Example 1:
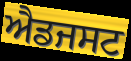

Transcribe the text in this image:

ਐਡਜਸਟ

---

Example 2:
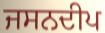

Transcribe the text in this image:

ਜਸਨਦੀਪ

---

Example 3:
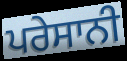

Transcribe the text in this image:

ਪਰੇਸਾਨੀ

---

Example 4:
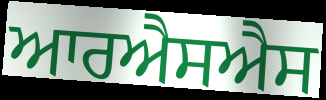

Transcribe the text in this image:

ਆਰਐਸਐਸ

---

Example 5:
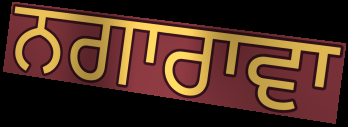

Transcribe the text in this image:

ਨਗਾਰਾਵਾ